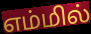
எம்மில்